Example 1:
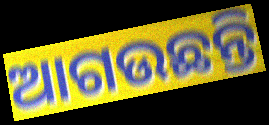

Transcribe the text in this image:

ଆଗଉଛନ୍ତି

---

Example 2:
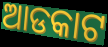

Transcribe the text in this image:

ଆଡକାଟ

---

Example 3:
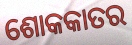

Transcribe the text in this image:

ଶୋକକାତର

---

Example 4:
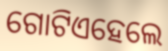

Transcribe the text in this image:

ଗୋଟିଏହେଲେ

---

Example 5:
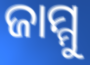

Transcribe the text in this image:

ଜାମ୍ମୁ